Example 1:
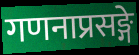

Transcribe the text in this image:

गणनाप्रसङ्गे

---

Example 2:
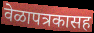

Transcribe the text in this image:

वेळापत्रकासह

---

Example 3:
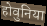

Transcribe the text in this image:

होवुनिया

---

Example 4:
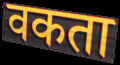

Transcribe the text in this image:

वकता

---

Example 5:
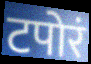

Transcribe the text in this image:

टपोरं